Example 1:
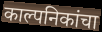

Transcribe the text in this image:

काल्पनिकांचा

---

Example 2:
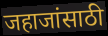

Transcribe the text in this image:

जहाजांसाठी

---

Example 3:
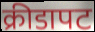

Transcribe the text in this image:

क्रीडापट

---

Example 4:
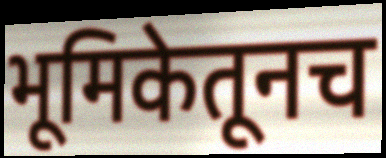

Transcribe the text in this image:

भूमिकेतूनच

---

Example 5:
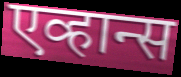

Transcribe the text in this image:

एव्हान्स